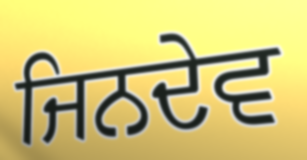
ਜਿਨਦੇਵ